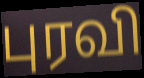
புரவி